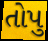
તોપુ